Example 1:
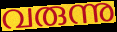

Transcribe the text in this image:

വരുന്നു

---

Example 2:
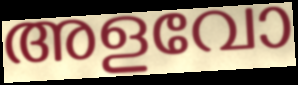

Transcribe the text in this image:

അളവോ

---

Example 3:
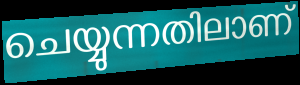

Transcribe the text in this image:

ചെയ്യുന്നതിലാണ്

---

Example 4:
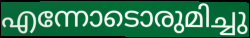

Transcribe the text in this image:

എന്നോടൊരുമിച്ചു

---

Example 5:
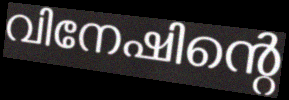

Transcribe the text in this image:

വിനേഷിന്റെ